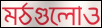
মঠগুলোও